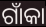
ଗାଁକା